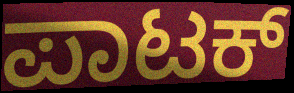
ಪಾಟಕ್